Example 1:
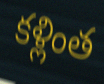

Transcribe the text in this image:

కళ్లింత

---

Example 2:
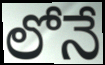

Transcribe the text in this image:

లోనే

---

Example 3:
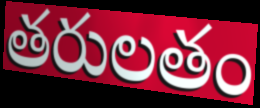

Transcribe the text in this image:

తరులతం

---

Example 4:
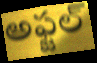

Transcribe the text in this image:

అఫ్జల్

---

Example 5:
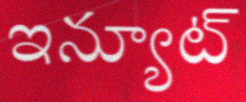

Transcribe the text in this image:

ఇన్యూట్